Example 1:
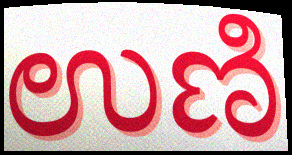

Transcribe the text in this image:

ಉಣಿ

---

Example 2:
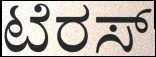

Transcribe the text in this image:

ಟೆರಸ್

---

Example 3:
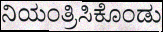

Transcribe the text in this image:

ನಿಯಂತ್ರಿಸಿಕೊಂಡು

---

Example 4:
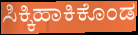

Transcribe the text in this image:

ಸಿಕ್ಕಿಹಾಕಿಕೊಂಡ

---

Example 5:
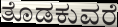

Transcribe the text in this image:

ತೊಡಕುವರೆ